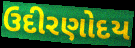
ઉદીરણોદય